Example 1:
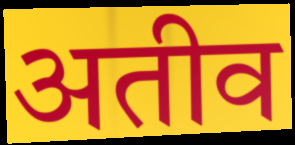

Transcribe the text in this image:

अतीव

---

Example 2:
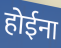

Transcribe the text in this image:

होईना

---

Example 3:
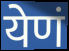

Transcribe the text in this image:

येणं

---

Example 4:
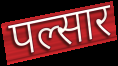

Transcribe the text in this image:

पल्सार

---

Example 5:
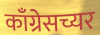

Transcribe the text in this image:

काँग्रेसच्यर